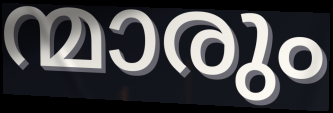
ന്മാരും